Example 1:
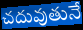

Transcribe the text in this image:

చదువుతునే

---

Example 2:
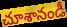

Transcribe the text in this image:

చూశానండీ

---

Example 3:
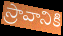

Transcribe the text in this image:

స్రావానికి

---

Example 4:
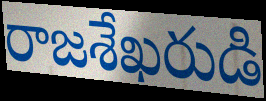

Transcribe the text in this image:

రాజశేఖరుడి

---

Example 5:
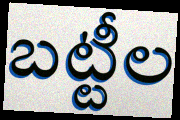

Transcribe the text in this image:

బట్టీల